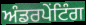
ਅੰਡਰਪੇਂਟਿੰਗ